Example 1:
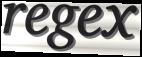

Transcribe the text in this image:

regex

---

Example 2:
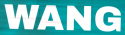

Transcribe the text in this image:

WANG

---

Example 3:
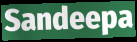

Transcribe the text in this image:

Sandeepa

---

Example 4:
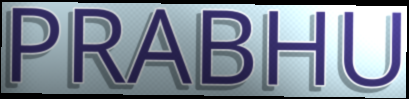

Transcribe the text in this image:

PRABHU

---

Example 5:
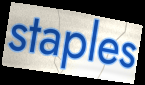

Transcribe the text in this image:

staples